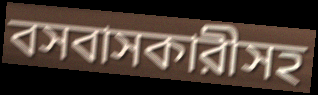
বসবাসকারীসহ